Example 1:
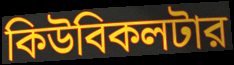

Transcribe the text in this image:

কিউবিকলটার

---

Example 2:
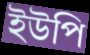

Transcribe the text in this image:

ইউপি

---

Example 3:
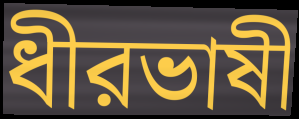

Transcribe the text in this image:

ধীরভাষী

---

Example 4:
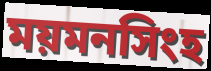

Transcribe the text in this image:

ময়মনসিংহ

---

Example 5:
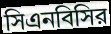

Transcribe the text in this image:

সিএনবিসির